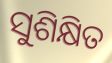
ସୁଶିକ୍ଷିତ